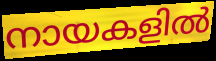
നായകളിൽ